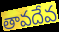
తావదేవ